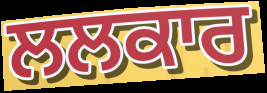
ਲਲਕਾਰ